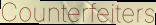
Counterfeiters